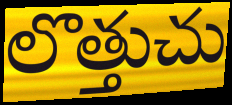
లొత్తుచు